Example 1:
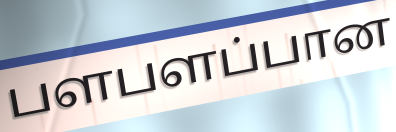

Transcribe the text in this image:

பளபளப்பான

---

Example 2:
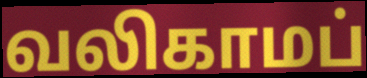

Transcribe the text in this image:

வலிகாமப்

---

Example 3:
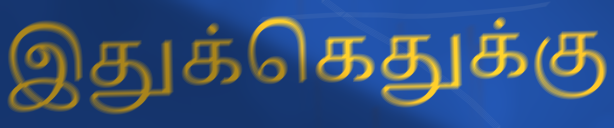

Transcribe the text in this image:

இதுக்கெதுக்கு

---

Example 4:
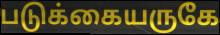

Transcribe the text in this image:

படுக்கையருகே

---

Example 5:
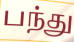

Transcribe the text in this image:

பந்து